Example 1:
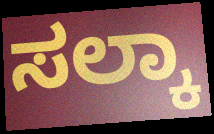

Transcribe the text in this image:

ಸಲ್ಕಾ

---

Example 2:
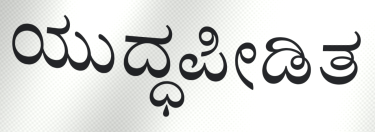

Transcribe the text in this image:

ಯುದ್ಧಪೀಡಿತ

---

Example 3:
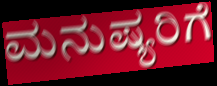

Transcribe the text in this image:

ಮನುಷ್ಯರಿಗೆ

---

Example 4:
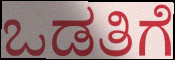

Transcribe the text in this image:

ಒಡತಿಗೆ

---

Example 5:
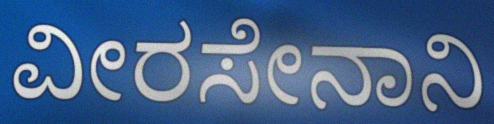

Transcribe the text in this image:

ವೀರಸೇನಾನಿ